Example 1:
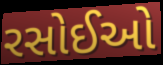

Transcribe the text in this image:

રસોઈઓ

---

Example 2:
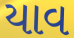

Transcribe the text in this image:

યાવ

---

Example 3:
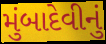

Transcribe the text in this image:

મુંબાદેવીનું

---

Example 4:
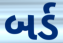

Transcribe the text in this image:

બર્ડ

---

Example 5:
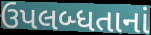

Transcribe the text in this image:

ઉપલબ્ધતાનાં